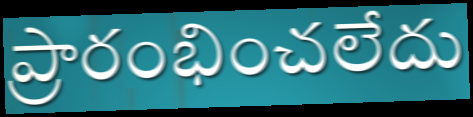
ప్రారంభించలేదు